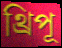
থ্রিপূ